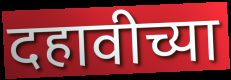
दहावीच्या